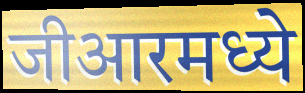
जीआरमध्ये